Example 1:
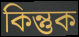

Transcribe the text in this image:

কিন্তুক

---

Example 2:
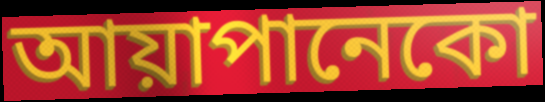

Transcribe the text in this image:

আয়াপানেকো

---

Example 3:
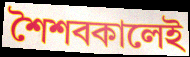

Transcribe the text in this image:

শৈশবকালেই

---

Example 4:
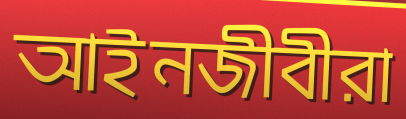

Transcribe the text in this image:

আইনজীবীরা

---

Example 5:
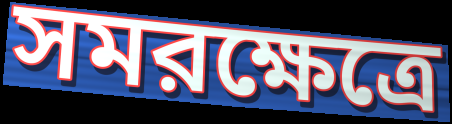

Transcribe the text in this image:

সমরক্ষেত্রে